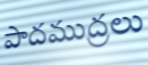
పాదముద్రలు